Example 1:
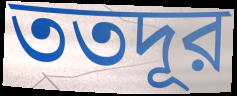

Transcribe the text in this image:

ততদূর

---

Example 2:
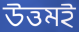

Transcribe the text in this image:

উত্তমই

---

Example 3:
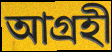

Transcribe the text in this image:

আগ্রহী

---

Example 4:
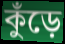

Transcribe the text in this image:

কুঁড়ে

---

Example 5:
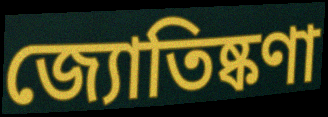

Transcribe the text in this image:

জ্যোতিষ্কণা